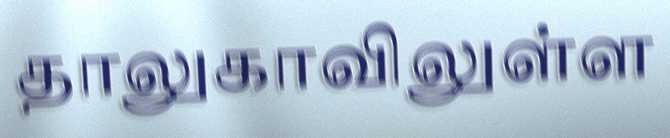
தாலுகாவிலுள்ள